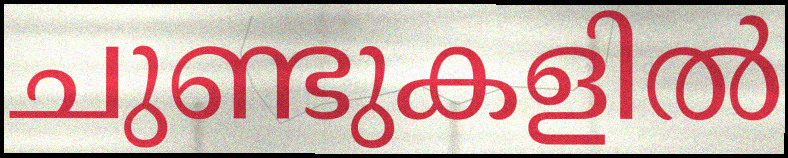
ചുണ്ടുകളിൽ